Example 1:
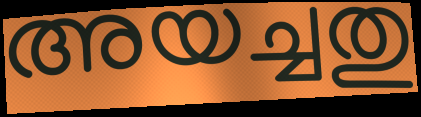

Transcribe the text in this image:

അയച്ചതു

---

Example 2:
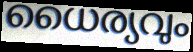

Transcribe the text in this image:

ധൈര്യവും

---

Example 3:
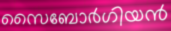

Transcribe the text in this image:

സൈബോർഗിയൻ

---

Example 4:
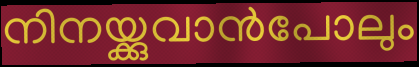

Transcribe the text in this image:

നിനയ്ക്കുവാൻപോലും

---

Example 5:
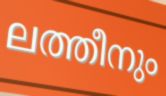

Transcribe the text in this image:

ലത്തീനും